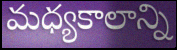
మధ్యకాలాన్ని